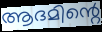
ആദമിന്റെ